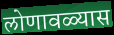
लोणावळ्यास